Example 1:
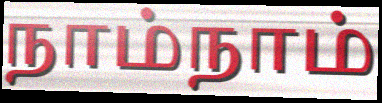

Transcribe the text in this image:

நாம்நாம்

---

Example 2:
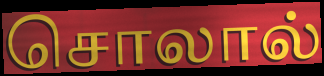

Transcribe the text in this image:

சொலால்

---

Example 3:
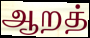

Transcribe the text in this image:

ஆறத்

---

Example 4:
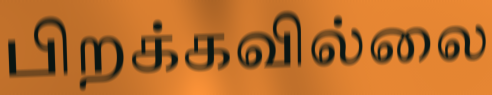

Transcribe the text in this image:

பிறக்கவில்லை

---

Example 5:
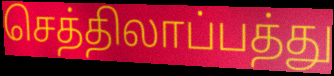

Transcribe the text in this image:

செத்திலாப்பத்து